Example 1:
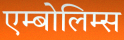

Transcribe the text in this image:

एम्बोलिम्स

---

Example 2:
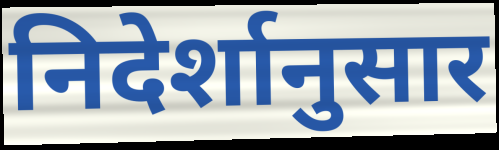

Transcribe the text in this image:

निदेर्शानुसार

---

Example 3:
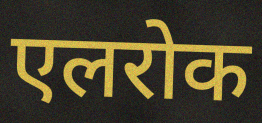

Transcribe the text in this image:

एलरोक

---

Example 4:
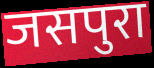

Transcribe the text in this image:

जसपुरा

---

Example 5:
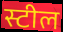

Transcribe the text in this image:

स्‍टील